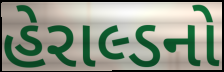
હેરાલ્ડનો